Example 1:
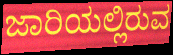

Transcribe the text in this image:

ಜಾರಿಯಲ್ಲಿರುವ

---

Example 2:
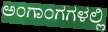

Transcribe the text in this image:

ಅಂಗಾಂಗಗಳಲ್ಲಿ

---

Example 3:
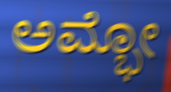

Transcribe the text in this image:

ಅಮ್ಭೋ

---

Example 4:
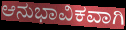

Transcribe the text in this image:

ಆನುಭಾವಿಕವಾಗಿ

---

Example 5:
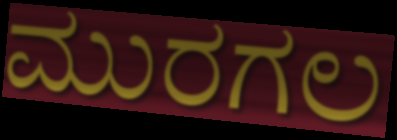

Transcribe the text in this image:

ಮುರಗಲ